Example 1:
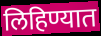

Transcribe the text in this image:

लिहिण्यात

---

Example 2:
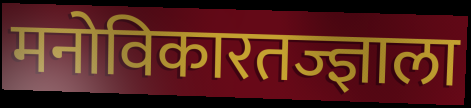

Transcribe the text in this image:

मनोविकारतज्ज्ञाला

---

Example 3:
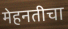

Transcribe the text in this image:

मेहनतीचा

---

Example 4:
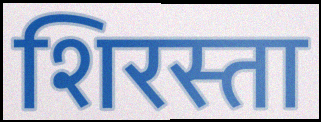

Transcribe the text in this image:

शिरस्ता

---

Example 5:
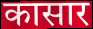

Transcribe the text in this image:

कासार